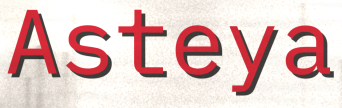
Asteya